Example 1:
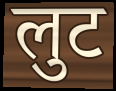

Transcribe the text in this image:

लुट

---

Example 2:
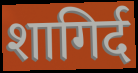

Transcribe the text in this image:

शागिर्द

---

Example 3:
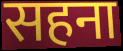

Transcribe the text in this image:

सहना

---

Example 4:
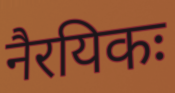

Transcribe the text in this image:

नैरयिकः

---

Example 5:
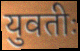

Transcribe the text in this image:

युवतीः